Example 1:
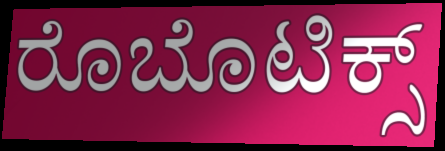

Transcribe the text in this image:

ರೊಬೊಟಿಕ್ಸ್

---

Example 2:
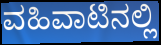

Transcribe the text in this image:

ವಹಿವಾಟಿನಲ್ಲಿ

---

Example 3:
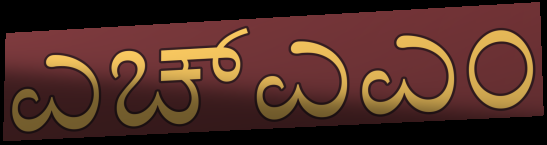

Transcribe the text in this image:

ಎಚ್ಎಎಂ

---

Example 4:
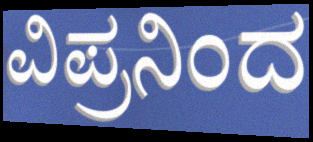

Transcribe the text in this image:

ವಿಪ್ರನಿಂದ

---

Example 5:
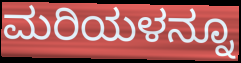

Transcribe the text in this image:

ಮರಿಯಳನ್ನೂ